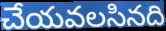
చేయవలసినది